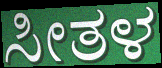
ಸೀತಳ